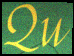
Qu